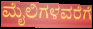
ಮೈಲಿಗಳವರೆಗೆ